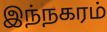
இந்நகரம்